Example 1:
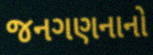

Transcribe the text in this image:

જનગણનાનો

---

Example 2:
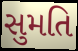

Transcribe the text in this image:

સુમતિ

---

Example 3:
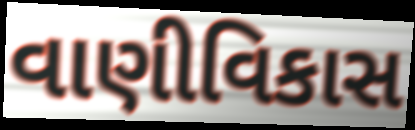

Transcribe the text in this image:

વાણીવિકાસ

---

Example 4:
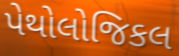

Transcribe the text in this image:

પેથોલોજિકલ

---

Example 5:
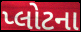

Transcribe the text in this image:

પ્લોટના